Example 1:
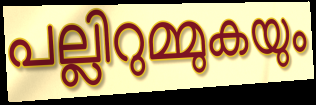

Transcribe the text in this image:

പല്ലിറുമ്മുകയും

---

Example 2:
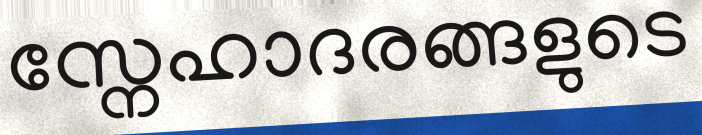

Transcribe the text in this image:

സ്നേഹാദരങ്ങളുടെ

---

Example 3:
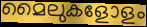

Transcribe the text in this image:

മൈലുകളോളം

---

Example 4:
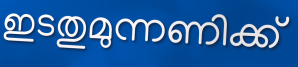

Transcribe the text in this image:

ഇടതുമുന്നണിക്ക്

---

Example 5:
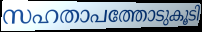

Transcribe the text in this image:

സഹതാപത്തോടുകൂടി